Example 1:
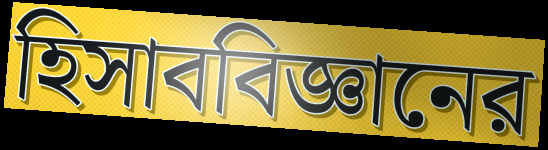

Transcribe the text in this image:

হিসাববিজ্ঞানের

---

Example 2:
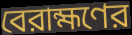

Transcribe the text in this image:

বেরাহ্মণের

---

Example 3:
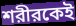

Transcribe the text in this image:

শরীরকেই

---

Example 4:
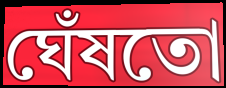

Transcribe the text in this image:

ঘেঁষতো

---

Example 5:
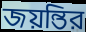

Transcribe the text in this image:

জয়ন্তির